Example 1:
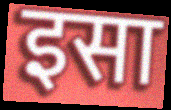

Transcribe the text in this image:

इसा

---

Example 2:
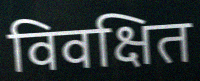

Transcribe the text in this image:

विवक्षित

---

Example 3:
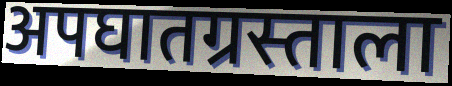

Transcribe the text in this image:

अपघातग्रस्ताला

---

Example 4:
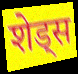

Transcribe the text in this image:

शेड्स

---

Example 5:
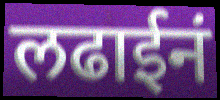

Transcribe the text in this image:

लढाईनं